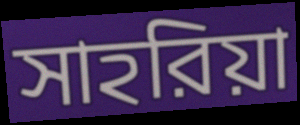
সাহরিয়া